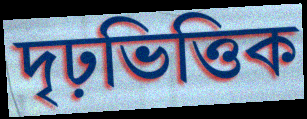
দৃঢ়ভিত্তিক